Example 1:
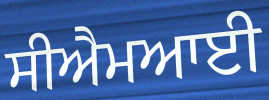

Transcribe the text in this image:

ਸੀਐਮਆਈ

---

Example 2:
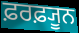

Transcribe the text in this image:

ਫ਼ਰਫ਼੍ਯੂਨ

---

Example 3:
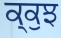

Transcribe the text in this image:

ਕ੍ਕੁਝ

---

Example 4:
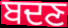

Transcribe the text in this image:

ਬਦਣ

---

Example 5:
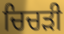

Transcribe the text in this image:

ਚਿਚੜੀ